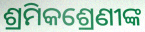
ଶ୍ରମିକଶ୍ରେଣୀଙ୍କ